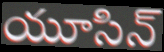
యూసిన్